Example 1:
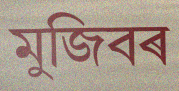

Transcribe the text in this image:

মুজিবৰ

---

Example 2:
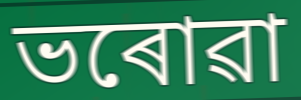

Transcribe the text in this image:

ভৰোৱা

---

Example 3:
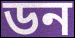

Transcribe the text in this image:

ডন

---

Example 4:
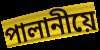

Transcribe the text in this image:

পালানীয়ে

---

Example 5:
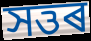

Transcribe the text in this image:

সত্তৰ